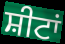
ਸ਼ੀਟਾਂ